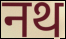
नथ